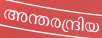
അന്തരന്ദ്രിയ